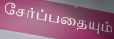
சேர்ப்பதையும்